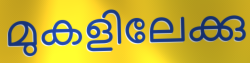
മുകളിലേക്കു